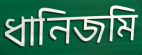
ধানিজমি